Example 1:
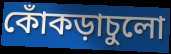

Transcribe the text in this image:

কোঁকড়াচুলো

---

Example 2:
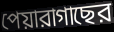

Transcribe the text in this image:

পেয়ারাগাছের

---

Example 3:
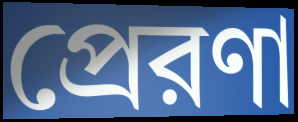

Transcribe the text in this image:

প্রেরণা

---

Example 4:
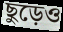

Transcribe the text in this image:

ছুড়েও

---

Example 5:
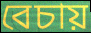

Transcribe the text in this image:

বেচায়